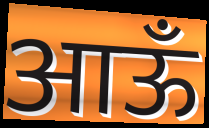
आऊँ